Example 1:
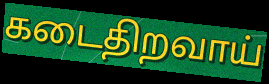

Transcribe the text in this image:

கடைதிறவாய்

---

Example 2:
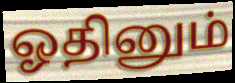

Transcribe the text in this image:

ஓதினும்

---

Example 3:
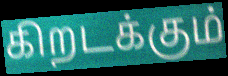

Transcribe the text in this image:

கிறடக்கும்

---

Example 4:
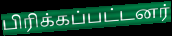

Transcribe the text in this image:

பிரிக்கப்பட்டனர்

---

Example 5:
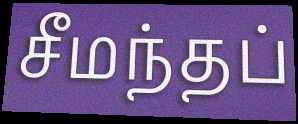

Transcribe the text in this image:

சீமந்தப்